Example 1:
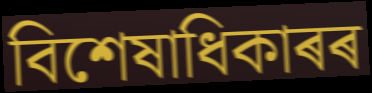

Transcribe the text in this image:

বিশেষাধিকাৰৰ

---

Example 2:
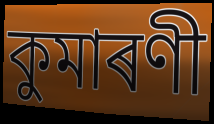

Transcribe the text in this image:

কুমাৰণী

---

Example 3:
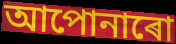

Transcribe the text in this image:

আপোনাৰো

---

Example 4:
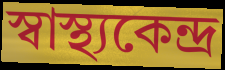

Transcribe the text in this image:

স্বাস্থ্যকেন্দ্ৰ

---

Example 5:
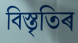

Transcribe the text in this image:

বিস্তৃতিৰ